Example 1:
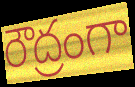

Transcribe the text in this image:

రౌద్రంగా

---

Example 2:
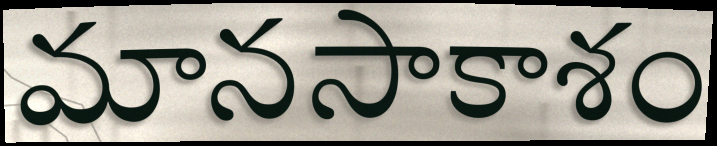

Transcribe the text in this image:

మానసాకాశం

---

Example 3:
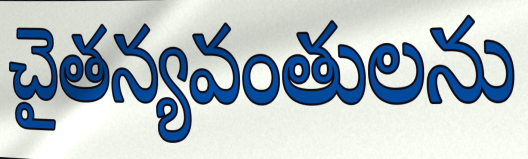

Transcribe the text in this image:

చైతన్యవంతులను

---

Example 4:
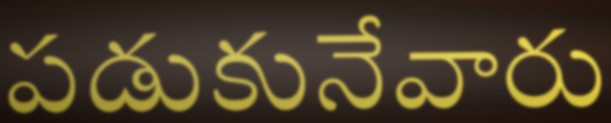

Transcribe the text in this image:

పడుకునేవారు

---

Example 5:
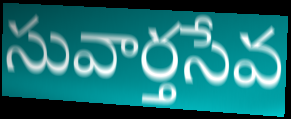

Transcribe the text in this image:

సువార్తసేవ